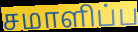
சமாளிப்ப